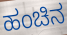
ಹಂಚಿನ